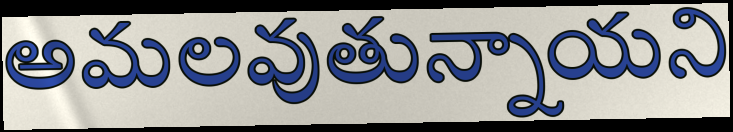
అమలవుతున్నాయని